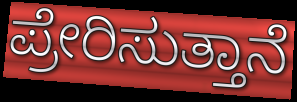
ಪ್ರೇರಿಸುತ್ತಾನೆ